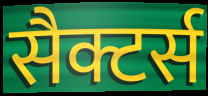
सैक्टर्स